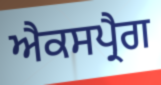
ਐਕਸਪ੍ਰੈਗ